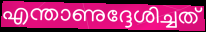
എന്താണുദ്ദേശിച്ചത്